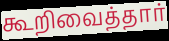
கூறிவைத்தார்